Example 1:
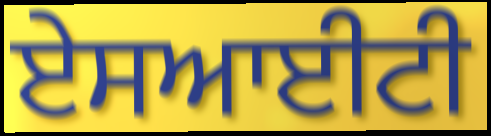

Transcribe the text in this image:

ਏਸਆਈਟੀ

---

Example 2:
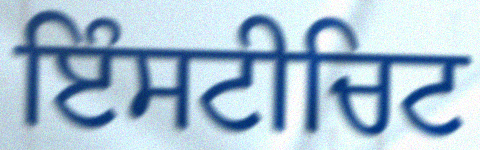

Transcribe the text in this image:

ਇੰਸਟੀਚਿਟ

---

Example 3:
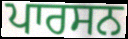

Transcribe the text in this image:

ਪਾਰਸਨ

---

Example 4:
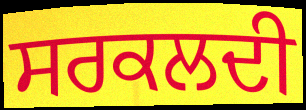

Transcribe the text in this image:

ਸਰਕਲਦੀ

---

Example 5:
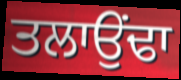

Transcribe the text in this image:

ਤਲਾਉਂਢਾ